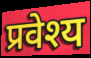
प्रवेश्य